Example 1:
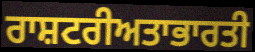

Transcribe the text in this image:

ਰਾਸ਼ਟਰੀਅਤਾਭਾਰਤੀ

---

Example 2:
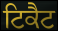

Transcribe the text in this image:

ਟਿਕੈਟ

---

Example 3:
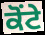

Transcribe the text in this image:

ਕੋਂਟੇ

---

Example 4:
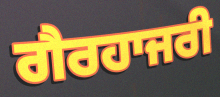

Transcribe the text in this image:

ਗੈਰਹਾਜਰੀ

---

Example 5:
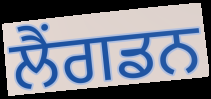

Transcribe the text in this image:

ਲੈਂਗਡਨ